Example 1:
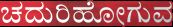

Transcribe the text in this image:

ಚದುರಿಹೋಗುವ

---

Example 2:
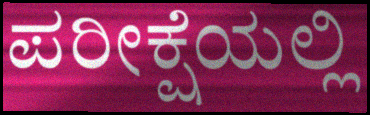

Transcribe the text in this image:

ಪರೀಕ್ಷೆಯಲ್ಲಿ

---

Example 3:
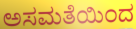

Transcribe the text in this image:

ಅಸಮತೆಯಿಂದ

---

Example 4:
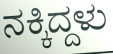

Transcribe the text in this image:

ನಕ್ಕಿದ್ದಳು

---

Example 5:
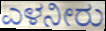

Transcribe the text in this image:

ಎಳನೀರು